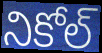
నికోల్